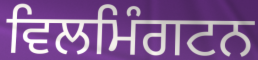
ਵਿਲਮਿੰਗਟਨ